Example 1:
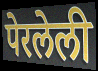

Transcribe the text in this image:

पेरलेली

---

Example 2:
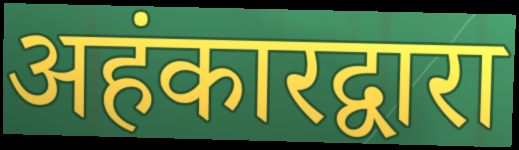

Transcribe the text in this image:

अहंकारद्वारा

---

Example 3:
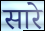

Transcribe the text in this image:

सारे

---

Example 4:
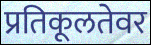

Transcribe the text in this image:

प्रतिकूलतेवर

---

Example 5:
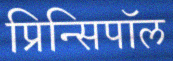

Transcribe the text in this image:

प्रिन्सिपॉल